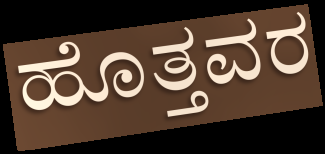
ಹೊತ್ತವರ